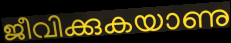
ജീവിക്കുകയാണു